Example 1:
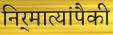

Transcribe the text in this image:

निर्मात्यांपैकी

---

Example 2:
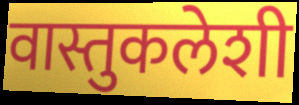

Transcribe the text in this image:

वास्तुकलेशी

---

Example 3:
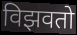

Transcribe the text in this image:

विझवतो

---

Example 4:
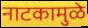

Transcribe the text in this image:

नाटकामुळे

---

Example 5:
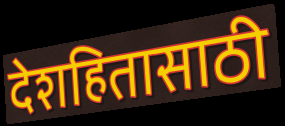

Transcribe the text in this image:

देशहितासाठी